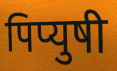
पिप्युषी